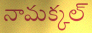
నామక్కల్